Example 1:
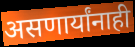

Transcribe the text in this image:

असणार्यांनाही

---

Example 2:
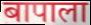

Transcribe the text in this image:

बापाला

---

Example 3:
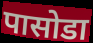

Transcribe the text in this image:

पासोडा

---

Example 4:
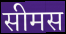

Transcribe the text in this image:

सीमस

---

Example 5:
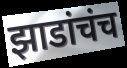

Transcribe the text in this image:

झाडांचंच